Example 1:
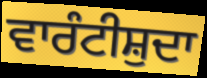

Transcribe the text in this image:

ਵਾਰੰਟੀਸ਼ੁਦਾ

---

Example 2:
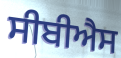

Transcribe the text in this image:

ਸੀਬੀਐਸ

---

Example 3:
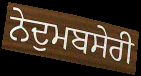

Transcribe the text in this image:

ਨੇਦੁਮਬਸੇਰੀ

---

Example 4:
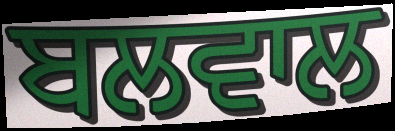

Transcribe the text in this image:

ਬਲਵਾਲ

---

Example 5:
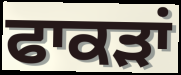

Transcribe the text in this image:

ਫਾਕੜਾਂ